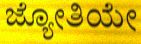
ಜ್ಯೋತಿಯೇ